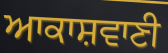
ਆਕਾਸ਼ਵਾਣੀ